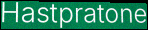
Hastpratone